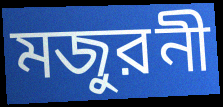
মজুরনী